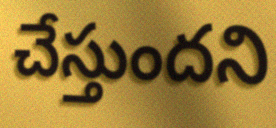
చేస్తుందని